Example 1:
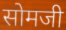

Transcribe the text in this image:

सोमजी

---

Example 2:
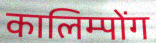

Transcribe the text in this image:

कालिम्पोंग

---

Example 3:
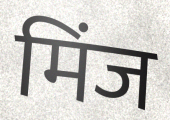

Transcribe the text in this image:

मिंज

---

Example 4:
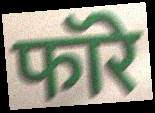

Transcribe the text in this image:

फॉरे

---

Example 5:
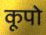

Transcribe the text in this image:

कूपो